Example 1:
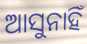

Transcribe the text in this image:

ଆସୁନାହିଁ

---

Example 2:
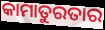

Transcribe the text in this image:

କାମାତୁରତାର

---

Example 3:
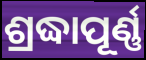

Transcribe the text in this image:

ଶ୍ରଦ୍ଧାପୂର୍ଣ୍ଣ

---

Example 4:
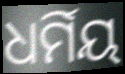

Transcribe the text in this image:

ଧର୍ମିୟ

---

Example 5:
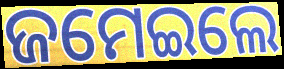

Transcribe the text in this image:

ଜମେଇଲେ